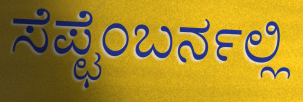
ಸೆಪ್ಟೆಂಬರ್ನಲ್ಲಿ